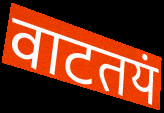
वाटतयं